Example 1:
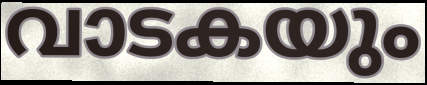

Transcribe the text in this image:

വാടകയും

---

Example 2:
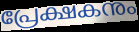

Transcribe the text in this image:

പ്രേക്ഷകനും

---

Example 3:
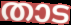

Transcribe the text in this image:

താട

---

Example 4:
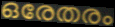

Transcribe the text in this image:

ഒരേതരം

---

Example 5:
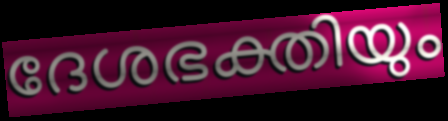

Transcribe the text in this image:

ദേശഭക്തിയും